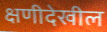
क्षणीदेखील